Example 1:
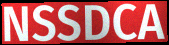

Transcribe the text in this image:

NSSDCA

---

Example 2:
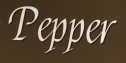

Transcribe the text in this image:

Pepper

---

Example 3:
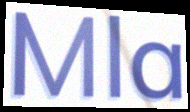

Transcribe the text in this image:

Mla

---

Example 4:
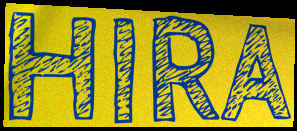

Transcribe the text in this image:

HIRA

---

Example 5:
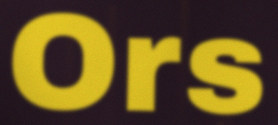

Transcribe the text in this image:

Ors